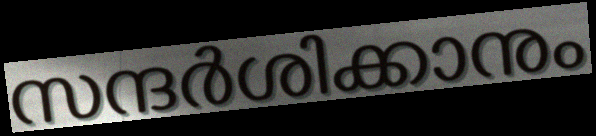
സന്ദർശിക്കാനും